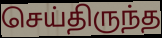
செய்திருந்த